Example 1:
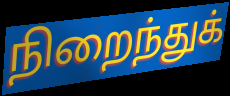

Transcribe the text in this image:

நிறைந்துக்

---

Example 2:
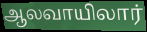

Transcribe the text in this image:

ஆலவாயிலார்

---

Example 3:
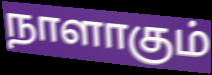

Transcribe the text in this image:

நாளாகும்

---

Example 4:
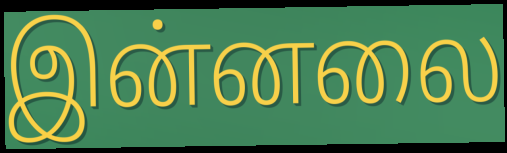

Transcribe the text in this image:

இன்னலை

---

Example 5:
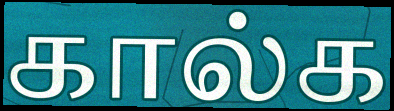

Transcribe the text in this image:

கால்க